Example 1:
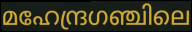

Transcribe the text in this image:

മഹേന്ദ്രഗഞ്ചിലെ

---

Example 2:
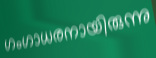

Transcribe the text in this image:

ഗംഗാധരനായിരുന്നു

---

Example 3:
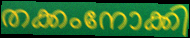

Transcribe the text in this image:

തക്കംനോക്കി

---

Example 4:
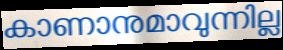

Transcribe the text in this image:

കാണാനുമാവുന്നില്ല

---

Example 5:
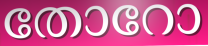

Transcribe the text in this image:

തോറോ